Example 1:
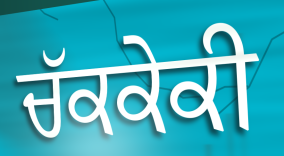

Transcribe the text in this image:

ਚੱਕਕੇਕੀ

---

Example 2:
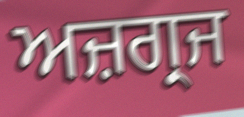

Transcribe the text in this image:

ਅਜ਼ਗ੍ਰਜ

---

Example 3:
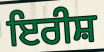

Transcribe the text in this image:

ਇਰੀਸ਼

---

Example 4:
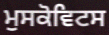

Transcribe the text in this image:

ਮੁਸਕੋਵਿਟਸ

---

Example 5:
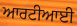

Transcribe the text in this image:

ਆਰਟੀਆਈ